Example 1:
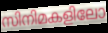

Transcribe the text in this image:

സിനിമകളിലോ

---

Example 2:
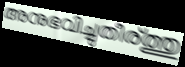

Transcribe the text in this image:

അനുഭവിച്ചുതീര്ത്തു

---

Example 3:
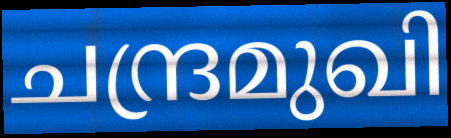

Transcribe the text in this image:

ചന്ദ്രമുഖി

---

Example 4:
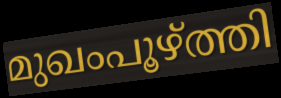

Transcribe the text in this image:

മുഖംപൂഴ്ത്തി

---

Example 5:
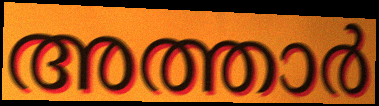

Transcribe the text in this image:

അത്താർ